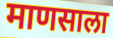
माणसाला